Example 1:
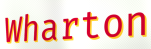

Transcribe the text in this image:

Wharton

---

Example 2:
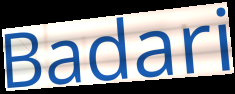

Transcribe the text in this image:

Badari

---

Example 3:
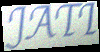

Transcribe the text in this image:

JATI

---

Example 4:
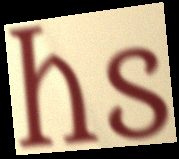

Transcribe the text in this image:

hs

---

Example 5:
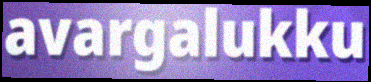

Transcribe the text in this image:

avargalukku